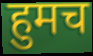
हुमच